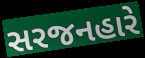
સરજનહારે